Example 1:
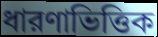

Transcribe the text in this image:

ধারণাভিত্তিক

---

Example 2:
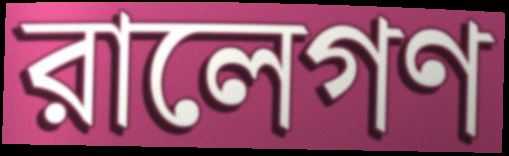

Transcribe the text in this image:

রালেগণ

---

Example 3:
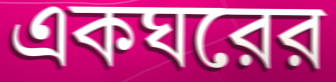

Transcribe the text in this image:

একঘরের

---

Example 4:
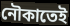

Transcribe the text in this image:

নৌকাতেই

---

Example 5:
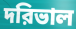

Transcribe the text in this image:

দরিভাল